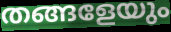
തങ്ങളേയും